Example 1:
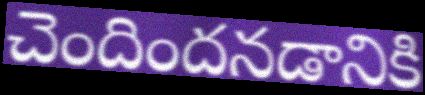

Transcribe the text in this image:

చెందిందనడానికి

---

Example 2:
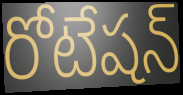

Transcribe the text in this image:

రోటేషన్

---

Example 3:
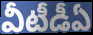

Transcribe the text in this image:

వీటీడీఏ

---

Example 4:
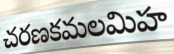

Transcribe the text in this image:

చరణకమలమిహ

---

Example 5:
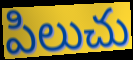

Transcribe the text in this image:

పిలుచు